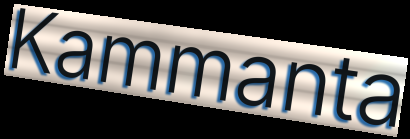
Kammanta